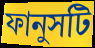
ফানুসটি